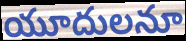
యూదులనూ